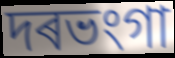
দৰভংগা